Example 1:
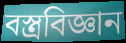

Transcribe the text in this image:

বস্ত্রবিজ্ঞান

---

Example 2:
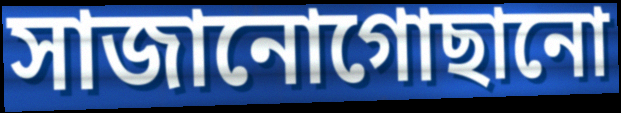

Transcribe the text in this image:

সাজানোগোছানো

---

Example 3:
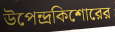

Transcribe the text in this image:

উপেন্দ্রকিশোরের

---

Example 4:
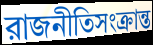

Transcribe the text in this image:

রাজনীতিসংক্রান্ত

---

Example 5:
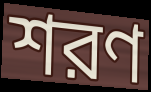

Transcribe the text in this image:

শরণ